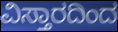
ವಿಸ್ತಾರದಿಂದ